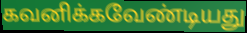
கவனிக்கவேண்டியது